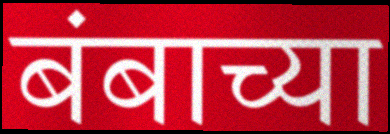
बंबाच्या